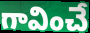
గావించే